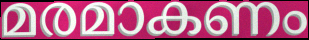
മരമാകണം